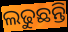
ଲଢୁଛନ୍ତି